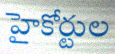
హైకోర్టుల